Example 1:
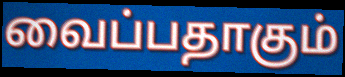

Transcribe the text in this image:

வைப்பதாகும்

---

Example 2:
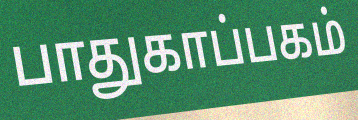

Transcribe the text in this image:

பாதுகாப்பகம்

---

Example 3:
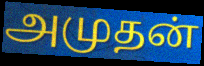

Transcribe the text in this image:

அமுதன்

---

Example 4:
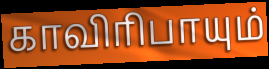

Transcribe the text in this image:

காவிரிபாயும்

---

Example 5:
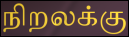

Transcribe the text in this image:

நிறலக்கு